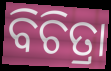
ବିଚିତ୍ରା